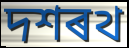
দশৰথ